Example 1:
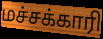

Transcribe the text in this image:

மச்சக்காரி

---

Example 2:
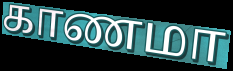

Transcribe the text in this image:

காணமா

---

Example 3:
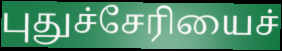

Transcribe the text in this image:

புதுச்சேரியைச்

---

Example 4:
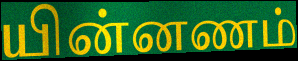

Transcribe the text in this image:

யின்னணம்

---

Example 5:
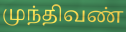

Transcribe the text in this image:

முந்திவண்